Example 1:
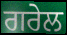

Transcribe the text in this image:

ਗਰੇਲ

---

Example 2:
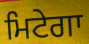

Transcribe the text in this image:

ਮਿਟੇਗਾ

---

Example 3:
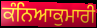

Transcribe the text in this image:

ਕੰਨਿਆਕੁਮਾਰੀ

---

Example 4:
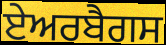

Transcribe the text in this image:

ਏਅਰਬੈਗਸ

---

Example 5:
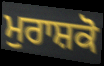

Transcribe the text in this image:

ਮੁਰਾਸ਼ਕੋ